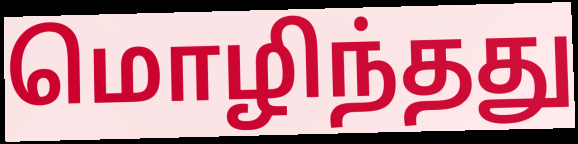
மொழிந்தது